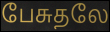
பேசுதலே